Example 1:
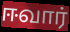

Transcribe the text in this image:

ஈவார்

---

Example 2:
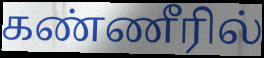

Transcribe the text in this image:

கண்ணீரில்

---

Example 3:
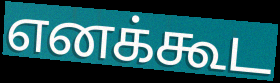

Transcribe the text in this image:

எனக்கூட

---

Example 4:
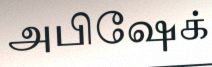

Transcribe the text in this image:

அபிஷேக்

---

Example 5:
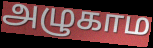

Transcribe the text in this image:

அழுகாம